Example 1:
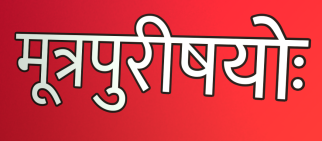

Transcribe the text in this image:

मूत्रपुरीषयोः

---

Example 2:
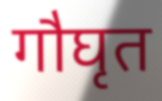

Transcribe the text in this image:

गौघृत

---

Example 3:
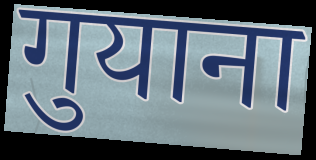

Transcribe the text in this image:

गुयाना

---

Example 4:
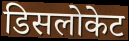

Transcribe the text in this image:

डिसलोकेट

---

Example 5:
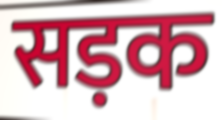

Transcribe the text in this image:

सड़क